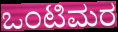
ಒಂಟಿಮರ